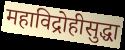
महाविद्रोहीसुद्धा